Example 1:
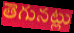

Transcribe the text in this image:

తెగునట్లు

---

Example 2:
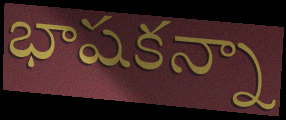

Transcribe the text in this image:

భాషకన్నా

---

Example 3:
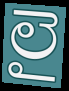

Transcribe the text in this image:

లై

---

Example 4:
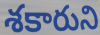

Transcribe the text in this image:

శకారుని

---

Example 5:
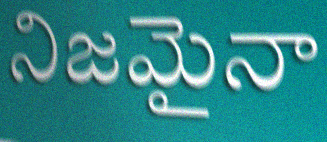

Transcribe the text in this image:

నిజమైనా